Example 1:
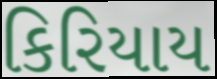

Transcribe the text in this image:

કિરિયાય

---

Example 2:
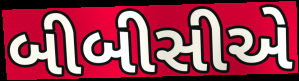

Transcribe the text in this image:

બીબીસીએ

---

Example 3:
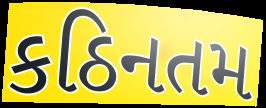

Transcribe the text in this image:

કઠિનતમ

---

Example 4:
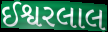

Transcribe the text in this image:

ઈશ્વરલાલ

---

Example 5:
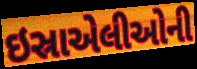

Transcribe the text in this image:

ઇસ્રાએલીઓની